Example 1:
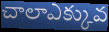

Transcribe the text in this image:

చాలాఎక్కువ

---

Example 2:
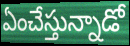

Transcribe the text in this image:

ఏంచేస్తున్నాడో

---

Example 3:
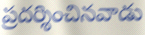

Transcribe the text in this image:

ప్రదర్శించినవాడు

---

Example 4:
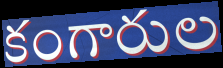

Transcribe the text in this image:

కంగారుల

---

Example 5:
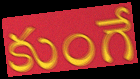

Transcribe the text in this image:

కుంగే